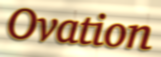
Ovation